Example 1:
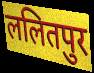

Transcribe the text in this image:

ललितपुर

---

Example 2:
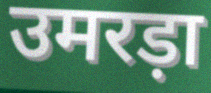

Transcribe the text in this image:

उमरड़ा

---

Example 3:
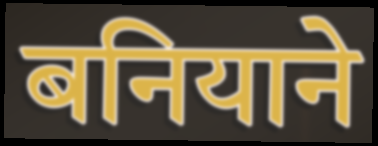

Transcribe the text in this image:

बनियाने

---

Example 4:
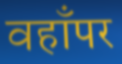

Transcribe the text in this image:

वहाँपर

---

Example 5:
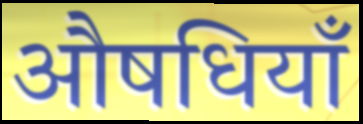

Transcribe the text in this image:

औषधियाँ